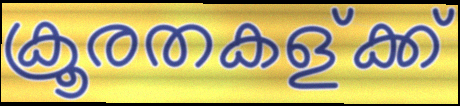
ക്രൂരതകള്ക്ക്